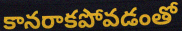
కానరాకపోవడంతో